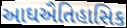
આઘઐતિહાસિક